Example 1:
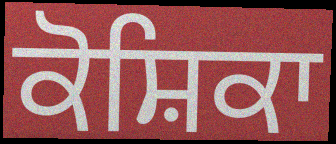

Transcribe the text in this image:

ਕੋਸ਼ਿਕਾ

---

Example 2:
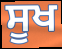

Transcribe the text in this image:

ਸੂਖ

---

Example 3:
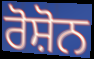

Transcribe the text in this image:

ਰੋਸ਼ੋਨ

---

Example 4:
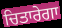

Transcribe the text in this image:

ਚਿਤਾਰੇਗਾ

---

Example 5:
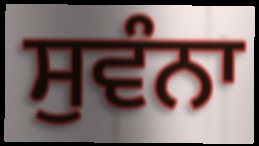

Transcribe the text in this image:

ਸੁਵੰਨਾ